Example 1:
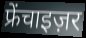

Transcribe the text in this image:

फ्रेंचाइज़र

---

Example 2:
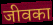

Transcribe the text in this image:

जीवका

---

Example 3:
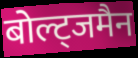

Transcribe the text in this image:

बोल्ट्जमैन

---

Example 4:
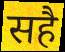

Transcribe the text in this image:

सहै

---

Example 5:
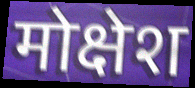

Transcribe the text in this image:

मोक्षेश